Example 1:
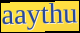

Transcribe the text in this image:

aaythu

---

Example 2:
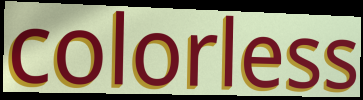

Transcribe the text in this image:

colorless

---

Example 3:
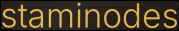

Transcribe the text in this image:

staminodes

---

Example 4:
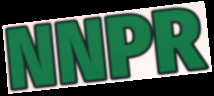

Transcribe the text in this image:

NNPR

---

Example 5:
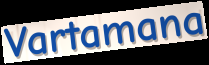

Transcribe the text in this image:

Vartamana